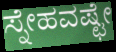
ಸ್ನೇಹವಷ್ಟೇ